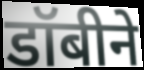
डॉबीने